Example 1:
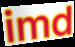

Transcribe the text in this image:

imd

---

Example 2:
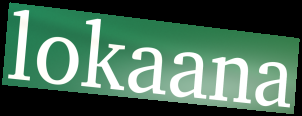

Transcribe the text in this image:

lokaana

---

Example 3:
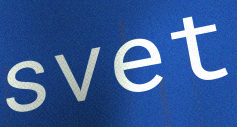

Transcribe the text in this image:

svet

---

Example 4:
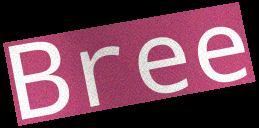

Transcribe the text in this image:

Bree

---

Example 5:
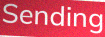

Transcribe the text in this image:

Sending